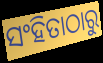
ସଂହିତାଠାରୁ